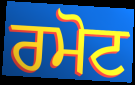
ਰਮੋਟ